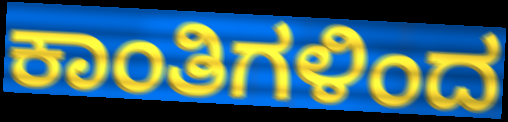
ಕಾಂತಿಗಳಿಂದ